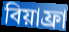
বিয়াফ্রা